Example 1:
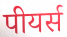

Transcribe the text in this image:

पीयर्स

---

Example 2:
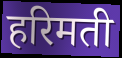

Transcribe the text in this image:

हरिमती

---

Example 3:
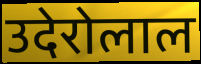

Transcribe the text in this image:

उदेरोलाल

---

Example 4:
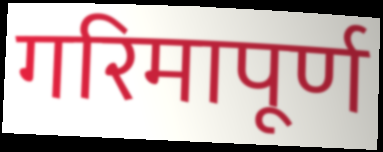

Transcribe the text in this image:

गरिमापूर्ण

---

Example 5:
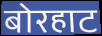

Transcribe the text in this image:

बोरहाट